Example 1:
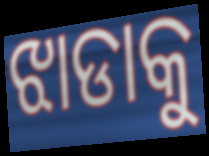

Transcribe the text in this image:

ଝାଡାକୁ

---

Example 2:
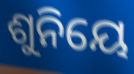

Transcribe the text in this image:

ଶୁନିୟେ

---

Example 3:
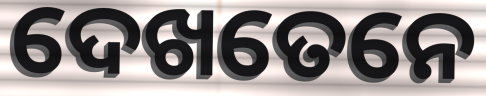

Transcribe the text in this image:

ଦେଖତେନେ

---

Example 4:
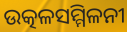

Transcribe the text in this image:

ଉତ୍କଳସମ୍ମିଳନୀ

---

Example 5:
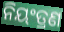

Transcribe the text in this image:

ନିୟଂତ୍ରଣ